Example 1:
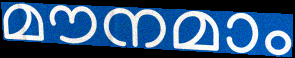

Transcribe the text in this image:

മൗനമാം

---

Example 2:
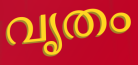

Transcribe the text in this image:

വൃതം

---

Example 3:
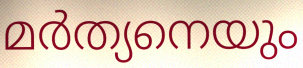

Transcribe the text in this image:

മർത്യനെയും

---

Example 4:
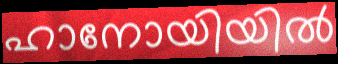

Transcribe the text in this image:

ഹാനോയിയിൽ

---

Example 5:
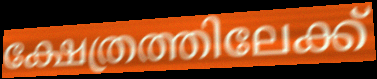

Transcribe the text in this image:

ക്ഷേത്രത്തിലേക്ക്